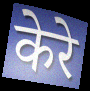
केरे